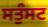
ਸਤੁੰਸਟ